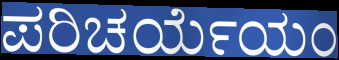
ಪರಿಚರ್ಯೆಯಂ